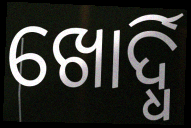
ଖୋର୍ଦ୍ଧି